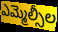
ఎమ్మెల్సీల